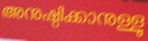
അനുഷ്ഠിക്കാനുള്ളു